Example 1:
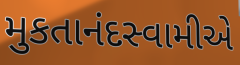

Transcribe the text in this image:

મુકતાનંદસ્વામીએ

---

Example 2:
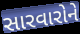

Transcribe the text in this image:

સારવારોને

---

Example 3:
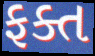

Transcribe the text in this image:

ફક્ત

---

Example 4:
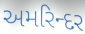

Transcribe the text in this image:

અમરિન્દર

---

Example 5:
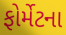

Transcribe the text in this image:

ફોર્મેટના